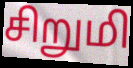
சிறுமி